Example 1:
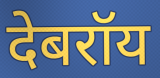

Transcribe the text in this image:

देबरॉय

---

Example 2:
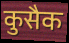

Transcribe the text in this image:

कुसैक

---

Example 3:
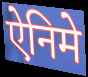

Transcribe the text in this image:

ऐनिमे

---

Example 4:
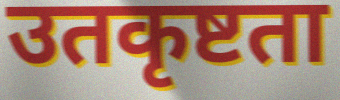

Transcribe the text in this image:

उतकृष्टता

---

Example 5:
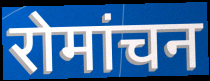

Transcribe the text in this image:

रोमांचन